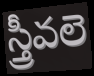
స్త్రీవలె